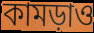
কামড়াও